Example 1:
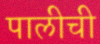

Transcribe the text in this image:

पालीची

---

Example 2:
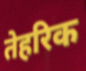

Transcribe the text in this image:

तेहरिक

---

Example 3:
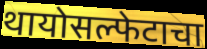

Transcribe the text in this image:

थायोसल्फेटाचा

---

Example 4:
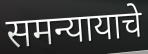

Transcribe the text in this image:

समन्यायाचे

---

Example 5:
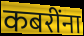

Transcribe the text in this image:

कबरींना